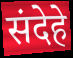
संदेहे